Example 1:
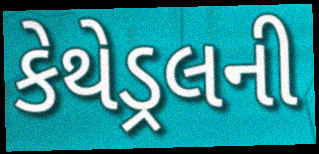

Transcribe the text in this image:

કેથેડ્રલની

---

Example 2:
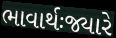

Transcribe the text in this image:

ભાવાર્થઃજ્યારે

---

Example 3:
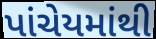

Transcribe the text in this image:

પાંચેયમાંથી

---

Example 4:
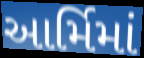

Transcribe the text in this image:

આર્મિમાં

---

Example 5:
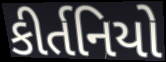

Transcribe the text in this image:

કીર્તનિયો